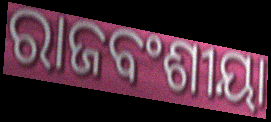
ରାଜବଂଶୀୟା